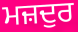
ਮਜ਼ਦੁਰ